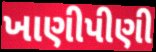
ખાણીપીણી